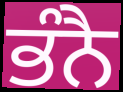
ਭੰਨੈ